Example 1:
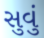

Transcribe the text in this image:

સુવું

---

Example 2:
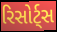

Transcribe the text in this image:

રિસોર્ટ્સ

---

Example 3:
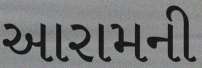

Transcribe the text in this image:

આરામની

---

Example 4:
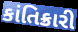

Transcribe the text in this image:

કાંતિક્રારી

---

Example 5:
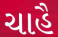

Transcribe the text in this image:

ચાહૈ